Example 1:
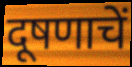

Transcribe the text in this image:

दूषणाचें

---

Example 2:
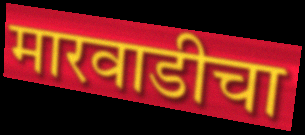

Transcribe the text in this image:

मारवाडीचा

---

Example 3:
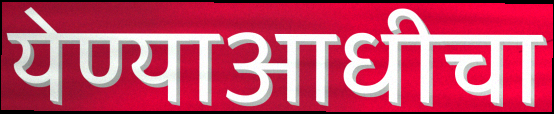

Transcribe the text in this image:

येण्याआधीचा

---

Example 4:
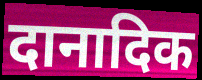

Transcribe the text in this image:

दानादिक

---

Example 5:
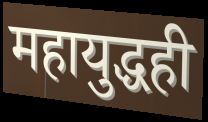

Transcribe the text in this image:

महायुद्धही